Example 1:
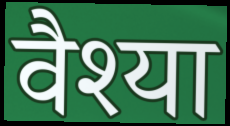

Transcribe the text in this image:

वैश्या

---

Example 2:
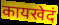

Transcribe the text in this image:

कायखेदं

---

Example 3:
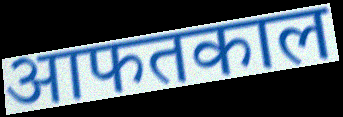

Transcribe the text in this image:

आफतकाल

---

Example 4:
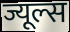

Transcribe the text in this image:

ज्यूल्स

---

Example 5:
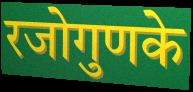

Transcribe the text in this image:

रजोगुणके